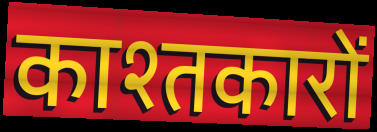
काश्तकारों